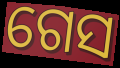
ଗେସ